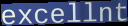
excellnt